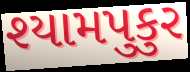
શ્યામપુકુર